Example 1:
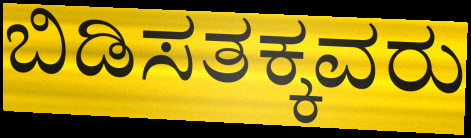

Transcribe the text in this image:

ಬಿಡಿಸತಕ್ಕವರು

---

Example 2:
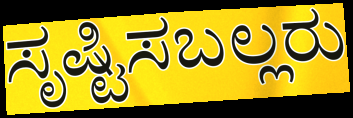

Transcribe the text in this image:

ಸೃಷ್ಟಿಸಬಲ್ಲರು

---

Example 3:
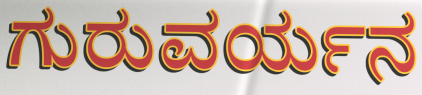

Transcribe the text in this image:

ಗುರುವರ್ಯನ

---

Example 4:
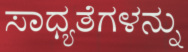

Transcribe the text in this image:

ಸಾಧ್ಯತೆಗಳನ್ನು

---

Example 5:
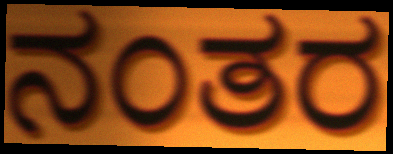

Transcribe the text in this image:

ನಂತರ